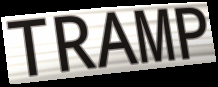
TRAMP